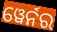
ୱେର୍ନର